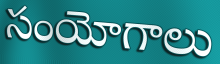
సంయోగాలు